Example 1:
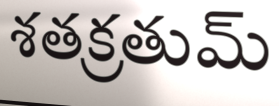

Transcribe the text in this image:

శతక్రతుమ్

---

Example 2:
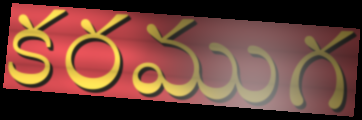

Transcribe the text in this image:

కరముగ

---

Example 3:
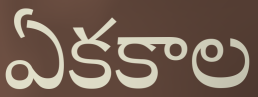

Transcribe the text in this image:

ఏకకాల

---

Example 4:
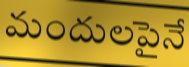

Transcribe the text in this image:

మందులపైనే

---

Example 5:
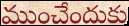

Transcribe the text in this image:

ముంచేందుకు